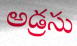
అడ్రసు